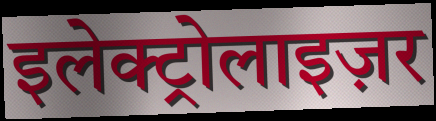
इलेक्ट्रोलाइज़र